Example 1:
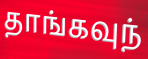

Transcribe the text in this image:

தாங்கவுந்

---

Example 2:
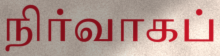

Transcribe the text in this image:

நிர்வாகப்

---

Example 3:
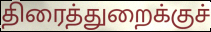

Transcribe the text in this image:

திரைத்துறைக்குச்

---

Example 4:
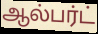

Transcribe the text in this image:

ஆல்பர்ட்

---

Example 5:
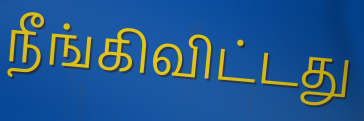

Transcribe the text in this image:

நீங்கிவிட்டது